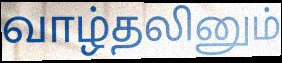
வாழ்தலினும்